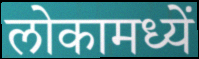
लोकामध्यें